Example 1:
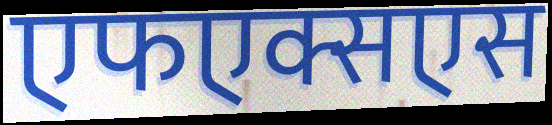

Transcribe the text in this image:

एफएक्सएस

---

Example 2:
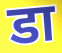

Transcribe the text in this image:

डा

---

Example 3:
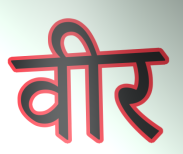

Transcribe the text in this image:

वीर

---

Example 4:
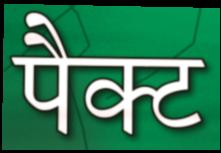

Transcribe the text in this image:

पैक्ट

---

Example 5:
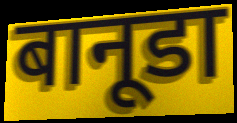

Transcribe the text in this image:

बानूडा